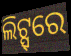
ଲିଟ୍ସ୍‌ରେ